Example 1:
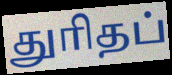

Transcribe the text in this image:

துரிதப்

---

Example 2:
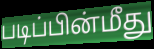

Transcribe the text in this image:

படிப்பின்மீது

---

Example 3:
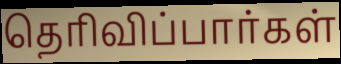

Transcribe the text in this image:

தெரிவிப்பார்கள்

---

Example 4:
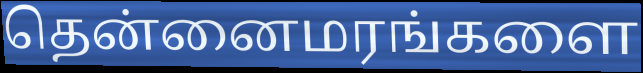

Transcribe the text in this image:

தென்னைமரங்களை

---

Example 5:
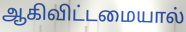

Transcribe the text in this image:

ஆகிவிட்டமையால்